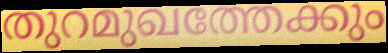
തുറമുഖത്തേക്കും